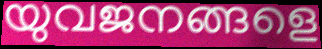
യുവജനങ്ങളെ